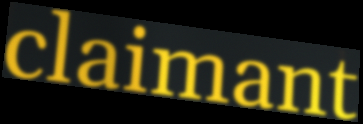
claimant